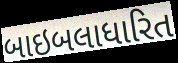
બાઇબલાધારિત